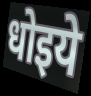
धोइये